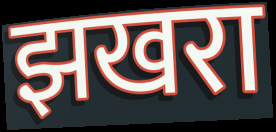
झखरा